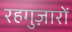
रहगुज़ारों